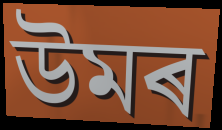
উমৰ